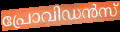
പ്രോവിഡൻസ്